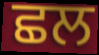
ਛਲ